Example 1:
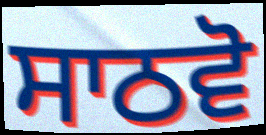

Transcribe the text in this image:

ਸਾਠਵੋ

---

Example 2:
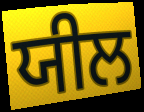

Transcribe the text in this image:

ਯੀਲ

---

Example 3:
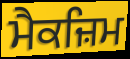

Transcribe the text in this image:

ਮੈਕਜ਼ਿਮ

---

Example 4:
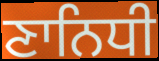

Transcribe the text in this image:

ਣਾਨਿਧੀ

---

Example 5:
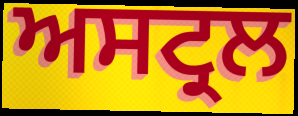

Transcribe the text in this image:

ਅਸਟ੍ਰਲ